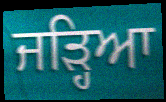
ਜੜ੍ਹਿਆ